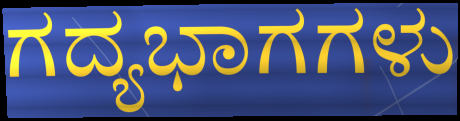
ಗದ್ಯಭಾಗಗಳು